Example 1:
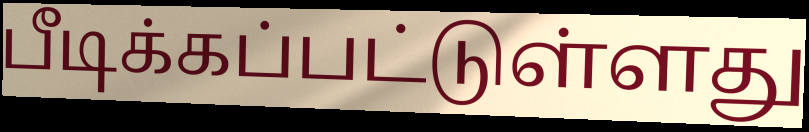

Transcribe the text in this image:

பீடிக்கப்பட்டுள்ளது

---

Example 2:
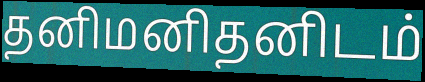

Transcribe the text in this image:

தனிமனிதனிடம்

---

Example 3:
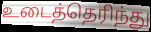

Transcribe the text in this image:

உடைத்தெரிந்து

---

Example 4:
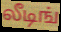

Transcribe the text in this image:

லீடிங்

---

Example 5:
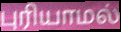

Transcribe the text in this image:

புரியாமல்